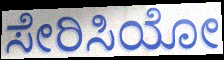
ಸೇರಿಸಿಯೋ